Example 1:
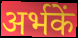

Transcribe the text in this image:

अर्भकें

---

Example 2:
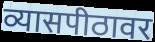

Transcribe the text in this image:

व्यासपीठावर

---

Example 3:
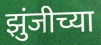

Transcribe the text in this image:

झुंजीच्या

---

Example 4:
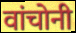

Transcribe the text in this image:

वांचोनी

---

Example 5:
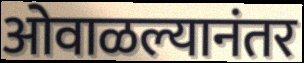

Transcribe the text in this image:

ओवाळल्यानंतर